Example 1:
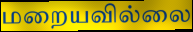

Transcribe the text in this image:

மறையவில்லை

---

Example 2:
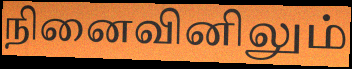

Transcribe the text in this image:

நினைவினிலும்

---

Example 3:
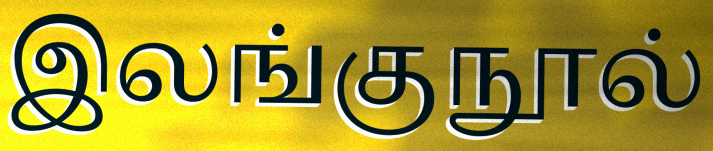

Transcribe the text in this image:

இலங்குநூல்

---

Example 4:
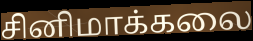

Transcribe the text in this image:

சினிமாக்கலை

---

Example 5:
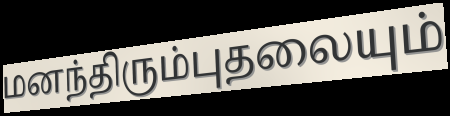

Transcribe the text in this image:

மனந்திரும்புதலையும்